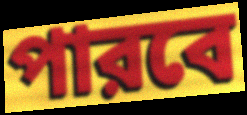
পারবে